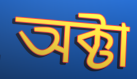
অক্টা